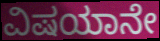
ವಿಷಯಾನೇ